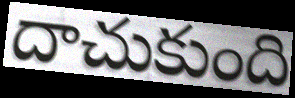
దాచుకుంది